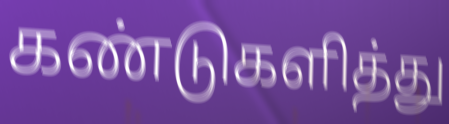
கண்டுகளித்து